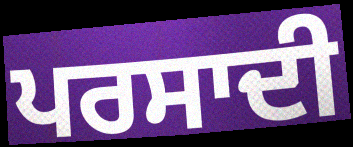
ਪਰਸਾਦੀ